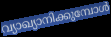
വ്യാഖ്യാനിക്കുമ്പോൾ